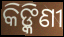
କିଙ୍କିଣୀ